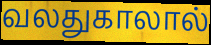
வலதுகாலால்